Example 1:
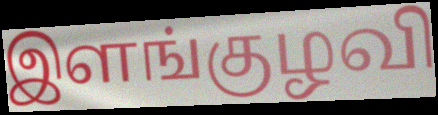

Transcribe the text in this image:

இளங்குழவி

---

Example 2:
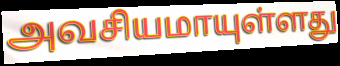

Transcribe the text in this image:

அவசியமாயுள்ளது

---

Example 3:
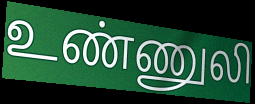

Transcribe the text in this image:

உண்ணுலி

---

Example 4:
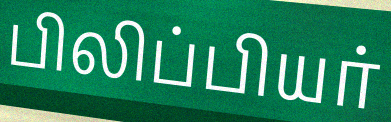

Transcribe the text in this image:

பிலிப்பியர்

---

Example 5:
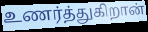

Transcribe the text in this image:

உணர்த்துகிறான்